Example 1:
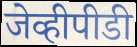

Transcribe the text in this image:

जेव्हीपीडी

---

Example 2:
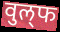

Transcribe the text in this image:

वुल्फ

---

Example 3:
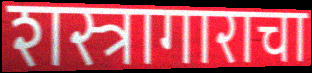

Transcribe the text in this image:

शस्त्रागाराचा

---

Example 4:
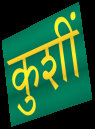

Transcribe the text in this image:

कुशीं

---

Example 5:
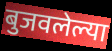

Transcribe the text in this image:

बुजवलेल्या